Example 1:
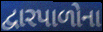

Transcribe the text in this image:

દ્વારપાળોના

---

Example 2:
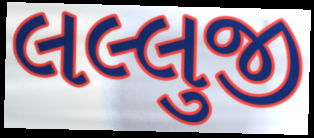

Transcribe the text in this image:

લલ્લુજી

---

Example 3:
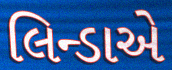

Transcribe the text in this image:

લિન્ડાએ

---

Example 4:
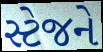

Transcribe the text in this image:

સ્ટેજને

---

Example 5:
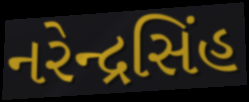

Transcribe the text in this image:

નરેન્દ્રસિંહ